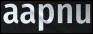
aapnu